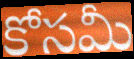
కోసమీ